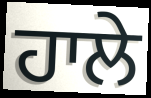
ਹਾਲੇ